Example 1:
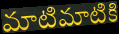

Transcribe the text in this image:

మాటిమాటికి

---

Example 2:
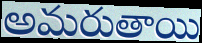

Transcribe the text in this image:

అమరుతాయి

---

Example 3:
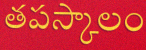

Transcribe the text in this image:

తపస్కాలం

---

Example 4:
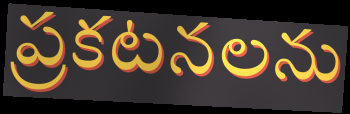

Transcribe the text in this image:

ప్రకటనలను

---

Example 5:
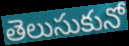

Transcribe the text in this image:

తెలుసుకునో